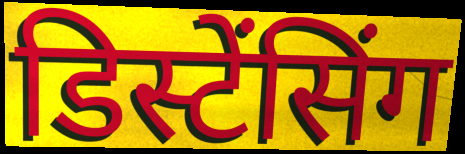
डिस्टेंसिंग